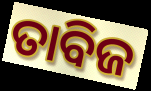
ତାବିଜ